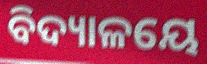
ବିଦ୍ୟାଳୟେ